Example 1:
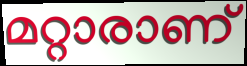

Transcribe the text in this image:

മറ്റാരാണ്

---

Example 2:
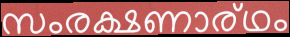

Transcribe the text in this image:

സംരക്ഷണാര്ഥം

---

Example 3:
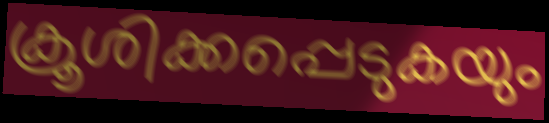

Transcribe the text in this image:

ക്രൂശിക്കപ്പെടുകയും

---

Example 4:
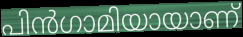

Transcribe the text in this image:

പിൻഗാമിയായാണ്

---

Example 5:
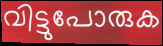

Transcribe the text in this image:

വിട്ടുപോരുക